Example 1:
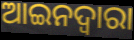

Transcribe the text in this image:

ଆଇନଦ୍ଵାରା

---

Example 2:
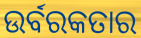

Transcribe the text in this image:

ଉର୍ବରକତାର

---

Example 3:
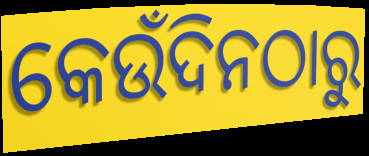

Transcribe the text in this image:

କେଉଁଦିନଠାରୁ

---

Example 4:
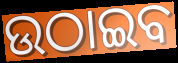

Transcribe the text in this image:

ଉଠାଇବ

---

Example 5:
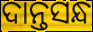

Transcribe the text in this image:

ଦାନ୍ତସନ୍ଧ